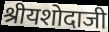
श्रीयशोदाजी